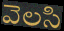
వెలసి